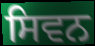
ਸਿਵਨ